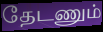
தேடணும்